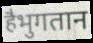
हैभुगतान